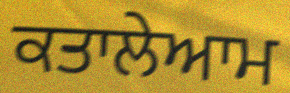
ਕਤਾਲੇਆਮ